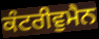
ਕੰਟਰੀਵੁਮੈਨ